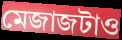
মেজাজটাও